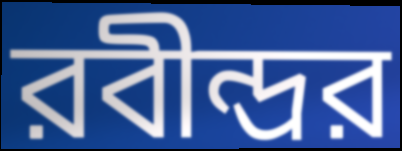
রবীন্দ্রর